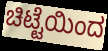
ಚಿಟ್ಟೆಯಿಂದ